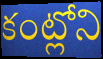
కంట్లోని